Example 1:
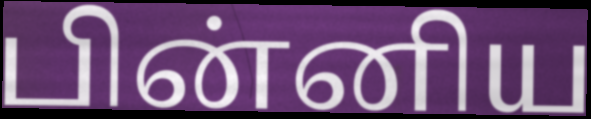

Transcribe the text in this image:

பின்னிய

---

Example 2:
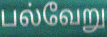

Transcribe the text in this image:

பல்வேறு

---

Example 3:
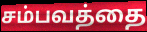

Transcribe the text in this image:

சம்பவத்தை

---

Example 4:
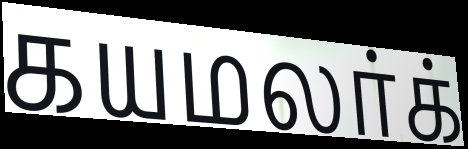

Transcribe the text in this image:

கயமலர்க்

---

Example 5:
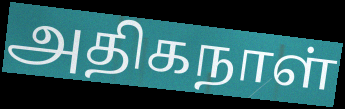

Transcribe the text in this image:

அதிகநாள்